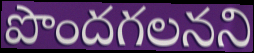
పొందగలనని